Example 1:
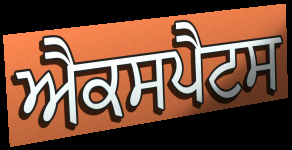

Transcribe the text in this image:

ਐਕਸਪੈਟਸ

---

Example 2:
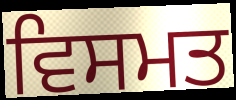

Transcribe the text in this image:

ਵਿਸਮਤ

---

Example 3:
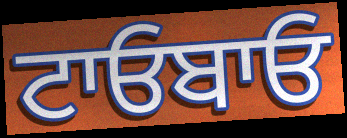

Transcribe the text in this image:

ਟਾਓਬਾਓ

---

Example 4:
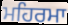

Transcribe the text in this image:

ਮਹਿਰਮਾ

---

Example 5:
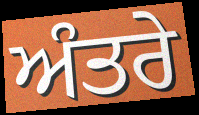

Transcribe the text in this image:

ਅੰਤਰੇ